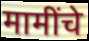
मामींचे